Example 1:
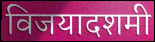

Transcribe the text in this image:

विजयादशमी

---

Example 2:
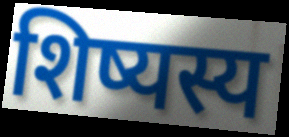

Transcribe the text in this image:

शिष्यस्य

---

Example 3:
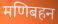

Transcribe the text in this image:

मणिबहन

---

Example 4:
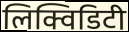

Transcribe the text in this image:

लिक्विडिटी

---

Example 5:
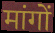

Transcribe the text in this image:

मांगों